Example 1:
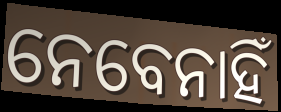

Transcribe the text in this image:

ନେବେନାହିଁ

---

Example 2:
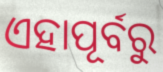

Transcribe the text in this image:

ଏହାପୂର୍ବରୁ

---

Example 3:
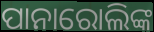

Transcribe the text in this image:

ପାନାରୋଲିଙ୍କ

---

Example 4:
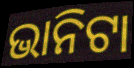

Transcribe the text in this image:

ଭାନିଟା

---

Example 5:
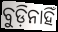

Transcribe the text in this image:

ବୁଡ଼ିନାହିଁ